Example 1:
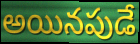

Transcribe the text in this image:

అయినపుడే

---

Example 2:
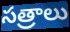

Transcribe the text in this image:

సత్రాలు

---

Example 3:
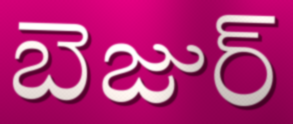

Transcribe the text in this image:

బెజుర్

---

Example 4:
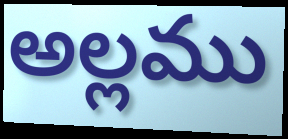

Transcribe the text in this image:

అల్లము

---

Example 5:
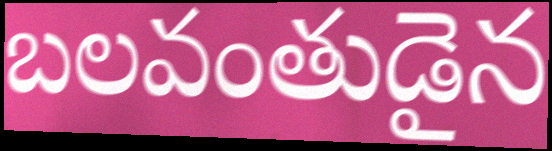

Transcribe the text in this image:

బలవంతుడైన